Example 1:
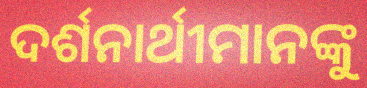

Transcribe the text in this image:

ଦର୍ଶନାର୍ଥୀମାନଙ୍କୁ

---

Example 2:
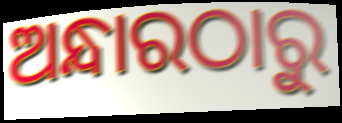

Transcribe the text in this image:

ଅନ୍ଧାରଠାରୁ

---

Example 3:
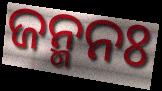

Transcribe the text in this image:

ଜନ୍ମନଃ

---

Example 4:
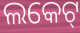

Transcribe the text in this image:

ଲକେଟ୍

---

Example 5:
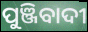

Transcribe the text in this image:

ପୁଞ୍ଜିବାଦୀ